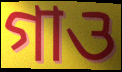
গাও